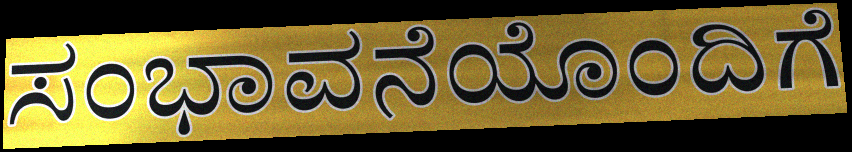
ಸಂಭಾವನೆಯೊಂದಿಗೆ